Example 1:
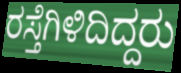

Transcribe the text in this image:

ರಸ್ತೆಗಿಳಿದಿದ್ದರು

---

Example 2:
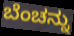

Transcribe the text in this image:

ಬೆಂಚನ್ನು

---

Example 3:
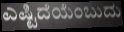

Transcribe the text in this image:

ಎಷ್ಟಿದೆಯೆಂಬುದು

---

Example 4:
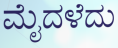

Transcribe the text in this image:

ಮೈದಳೆದು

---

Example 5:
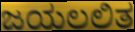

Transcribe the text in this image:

ಜಯಲಲಿತ